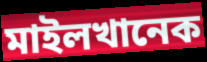
মাইলখানেক